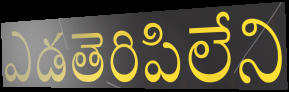
ఎడతెరిపిలేని